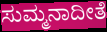
ಸುಮ್ಮನಾದೀತೆ